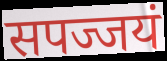
सपज्जयं